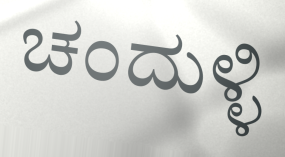
ಚಂದುಳ್ಳಿ